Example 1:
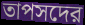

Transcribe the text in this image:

তাপসদের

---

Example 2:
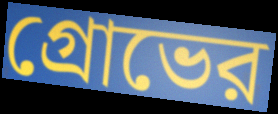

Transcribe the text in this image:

গ্রোভের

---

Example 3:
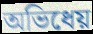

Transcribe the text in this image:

অভিধেয়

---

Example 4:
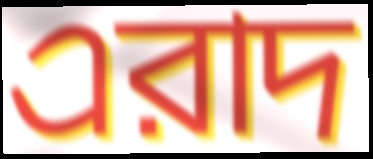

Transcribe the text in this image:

এরাদ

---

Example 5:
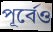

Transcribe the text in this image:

পূর্বেও